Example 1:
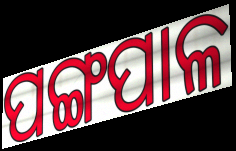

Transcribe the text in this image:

ପଙ୍ଗପାଳ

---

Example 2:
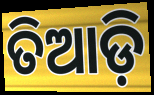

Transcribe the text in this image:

ତିଆଡ଼ି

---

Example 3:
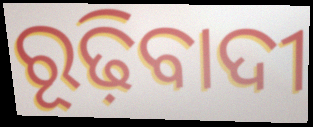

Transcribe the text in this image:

ରୂଢ଼ିବାଦୀ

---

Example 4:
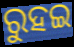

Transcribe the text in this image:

ରୁହଇ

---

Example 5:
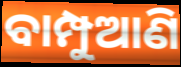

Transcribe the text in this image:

ବାମ୍ପୁଆଣି